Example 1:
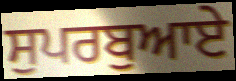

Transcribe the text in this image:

ਸੁਪਰਬੁਆਏ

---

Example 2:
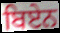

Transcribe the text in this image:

ਬਿਏਨ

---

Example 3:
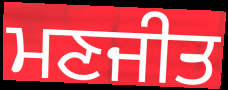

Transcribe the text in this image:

ਮਣਜੀਤ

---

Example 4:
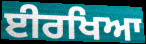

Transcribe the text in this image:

ਈਰਖਿਆ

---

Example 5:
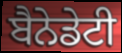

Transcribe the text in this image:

ਬੈਨੇਡੇਟੀ